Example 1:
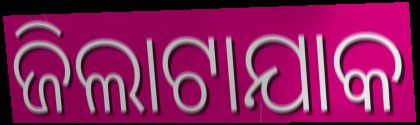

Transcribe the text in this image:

ଜିଲାଟାଯାକ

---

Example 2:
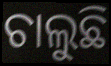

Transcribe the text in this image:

ଚାଲୁଛି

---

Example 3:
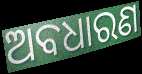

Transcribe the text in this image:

ଅବଧାରଣ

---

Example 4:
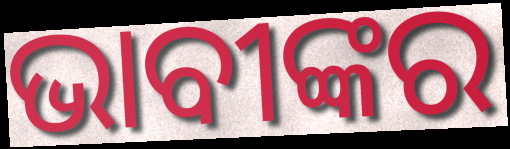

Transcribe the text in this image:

ଭାବୀଙ୍କର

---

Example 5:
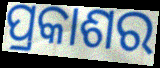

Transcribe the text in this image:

ପ୍ରକାଶର